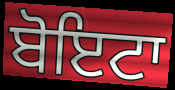
ਬੋਇਟਾ